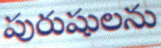
పురుషులను